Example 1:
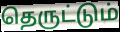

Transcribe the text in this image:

தெருட்டும்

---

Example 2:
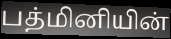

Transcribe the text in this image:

பத்மினியின்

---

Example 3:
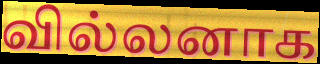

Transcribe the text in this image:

வில்லனாக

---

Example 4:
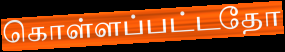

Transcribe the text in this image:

கொள்ளப்பட்டதோ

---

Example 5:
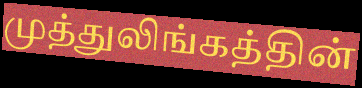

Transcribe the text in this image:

முத்துலிங்கத்தின்